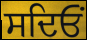
ਸਦਿਓਂ